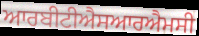
ਆਰਬੀਟੀਐਸਆਰਐਮਸੀ